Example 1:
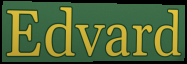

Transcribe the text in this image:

Edvard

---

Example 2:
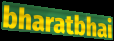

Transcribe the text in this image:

bharatbhai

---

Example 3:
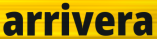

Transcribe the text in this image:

arrivera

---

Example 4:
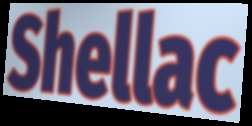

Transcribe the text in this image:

Shellac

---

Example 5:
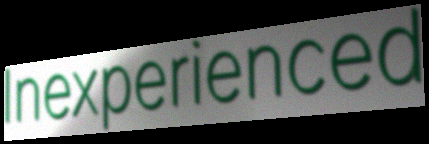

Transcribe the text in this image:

Inexperienced